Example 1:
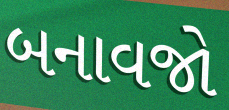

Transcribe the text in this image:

બનાવજો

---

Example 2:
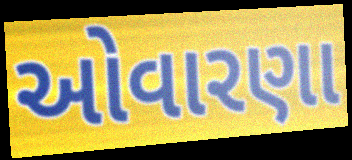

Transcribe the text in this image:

ઓવારણા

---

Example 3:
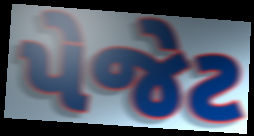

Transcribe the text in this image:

પેજેટ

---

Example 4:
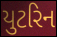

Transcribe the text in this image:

યુટરિન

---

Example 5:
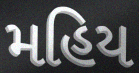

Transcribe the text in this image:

મહિય